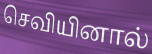
செவியினால்